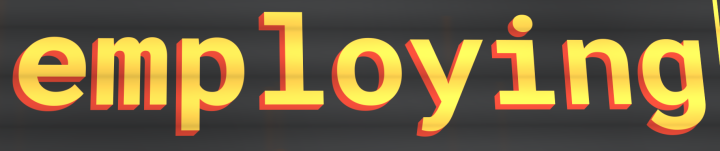
employing